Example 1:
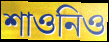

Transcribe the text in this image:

শাওনিও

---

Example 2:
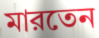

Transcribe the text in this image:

মারতেন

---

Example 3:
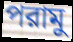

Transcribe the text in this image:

পরামু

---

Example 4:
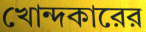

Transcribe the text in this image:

খোন্দকারের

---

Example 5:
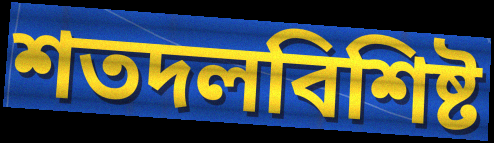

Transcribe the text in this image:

শতদলবিশিষ্ট